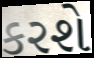
કરશે